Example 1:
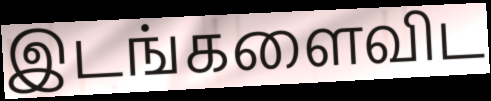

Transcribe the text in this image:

இடங்களைவிட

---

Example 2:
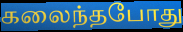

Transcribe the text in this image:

கலைந்தபோது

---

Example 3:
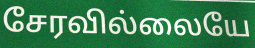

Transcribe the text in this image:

சேரவில்லையே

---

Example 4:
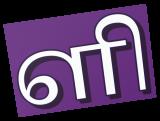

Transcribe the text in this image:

ளி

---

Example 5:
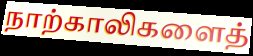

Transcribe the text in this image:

நாற்காலிகளைத்